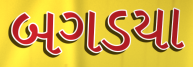
બગડયા